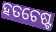
ହତଚେଷ୍ଟ